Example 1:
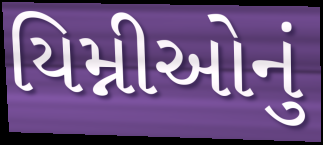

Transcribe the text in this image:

યિમ્નીઓનું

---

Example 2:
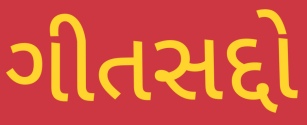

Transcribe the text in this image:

ગીતસદ્દો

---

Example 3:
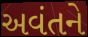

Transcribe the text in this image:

અવંતને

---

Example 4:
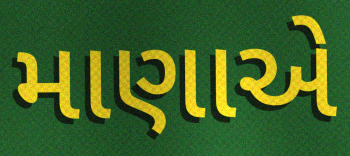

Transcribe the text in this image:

માણાએ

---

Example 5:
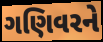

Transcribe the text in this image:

ગણિવરને